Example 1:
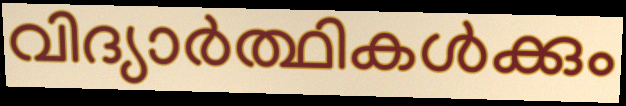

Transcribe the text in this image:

വിദ്യാർത്ഥികൾക്കും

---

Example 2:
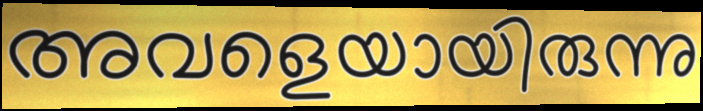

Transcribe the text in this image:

അവളെയായിരുന്നു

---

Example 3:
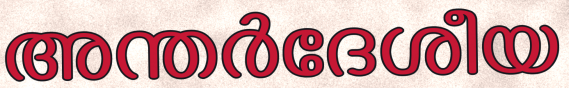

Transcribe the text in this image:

അന്തർദേശീയ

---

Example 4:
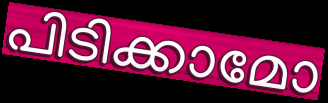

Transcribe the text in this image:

പിടിക്കാമോ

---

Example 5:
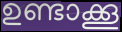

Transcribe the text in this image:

ഉണ്ടാക്കൂ